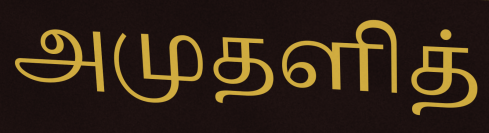
அமுதளித்